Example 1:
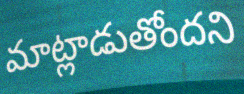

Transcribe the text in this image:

మాట్లాడుతోందని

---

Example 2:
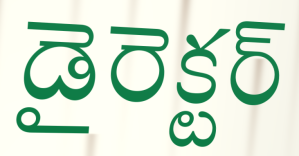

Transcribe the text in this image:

డైరెక్టర్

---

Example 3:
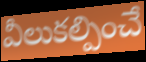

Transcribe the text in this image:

వీలుకల్పించే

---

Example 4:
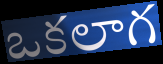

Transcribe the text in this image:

ఒకలాగ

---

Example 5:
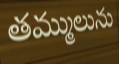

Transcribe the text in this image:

తమ్ములును